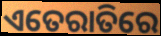
ଏତେରାତିରେ